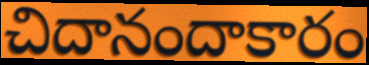
చిదానందాకారం